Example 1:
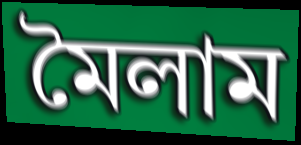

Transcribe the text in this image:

মৈলাম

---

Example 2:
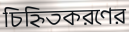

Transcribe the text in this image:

চিহ্নিতকরণের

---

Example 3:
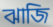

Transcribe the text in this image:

ঝাজি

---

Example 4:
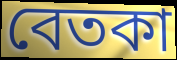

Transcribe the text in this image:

বেতকা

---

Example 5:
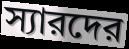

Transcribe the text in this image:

স্যারদের